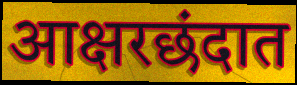
आक्षरछंदात